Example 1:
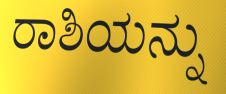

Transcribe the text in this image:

ರಾಶಿಯನ್ನು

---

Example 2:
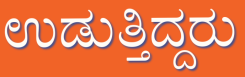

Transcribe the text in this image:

ಉಡುತ್ತಿದ್ದರು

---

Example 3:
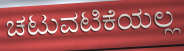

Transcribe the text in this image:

ಚಟುವಟಿಕೆಯಲ್ಲ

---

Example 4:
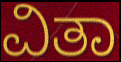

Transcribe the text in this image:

ವಿತಾ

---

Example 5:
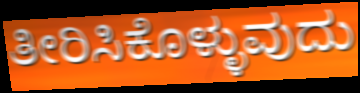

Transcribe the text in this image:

ತೀರಿಸಿಕೊಳ್ಳುವುದು